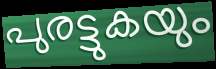
പുരട്ടുകയും